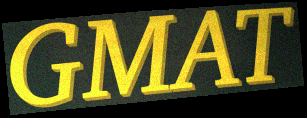
GMAT